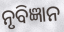
ନୃବିଜ୍ଞାନ